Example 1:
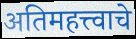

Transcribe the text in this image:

अतिमहत्त्वाचे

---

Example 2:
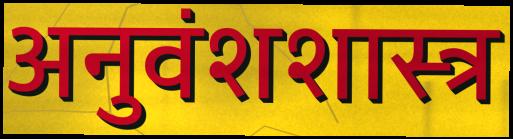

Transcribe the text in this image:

अनुवंशशास्त्र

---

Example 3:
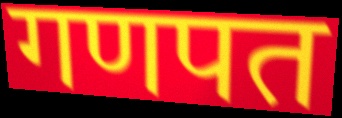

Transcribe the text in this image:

गणपत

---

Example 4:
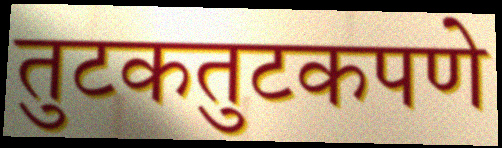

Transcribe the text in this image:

तुटकतुटकपणे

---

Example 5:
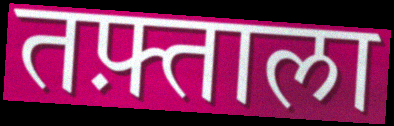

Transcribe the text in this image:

तफ़्ताला